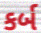
કર્બ